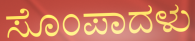
ಸೊಂಪಾದಳು